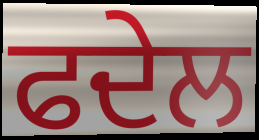
ਫਦੇਲ